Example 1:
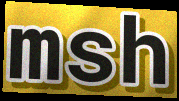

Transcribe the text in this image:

msh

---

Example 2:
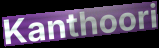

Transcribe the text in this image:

Kanthoori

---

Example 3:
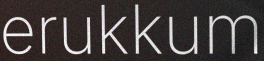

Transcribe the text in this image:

erukkum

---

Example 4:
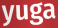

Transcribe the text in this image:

yuga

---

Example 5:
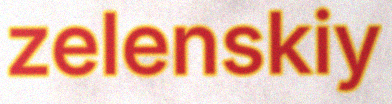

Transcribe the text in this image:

zelenskiy